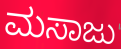
ಮಸಾಜು